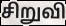
சிறுவி